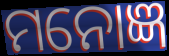
ମନୋଜ୍ଞ